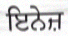
ਇਨੇਜ਼